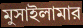
মুসাইলামার